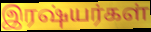
இரஷ்யர்கள்